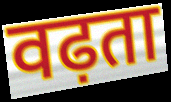
वढ़ता